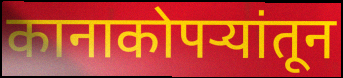
कानाकोपर्‍यांतून